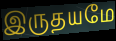
இருதயமே